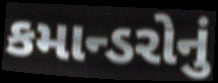
કમાન્ડરોનું